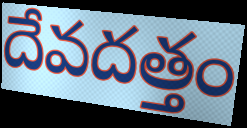
దేవదత్తం